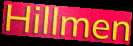
Hillmen